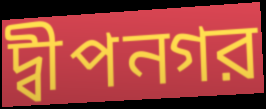
দ্বীপনগর